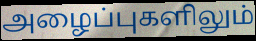
அழைப்புகளிலும்